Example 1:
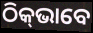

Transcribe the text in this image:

ଠିକ୍‍ଭାବେ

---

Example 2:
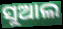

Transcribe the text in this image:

ସୁଆଲ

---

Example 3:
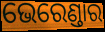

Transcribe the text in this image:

ଭେରେଣ୍ଡାର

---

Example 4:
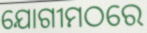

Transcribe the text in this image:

ଯୋଗୀମଠରେ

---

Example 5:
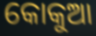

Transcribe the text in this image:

କୋକୁଆ